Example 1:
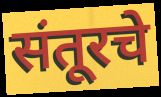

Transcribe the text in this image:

संतूरचे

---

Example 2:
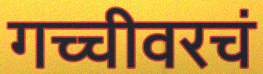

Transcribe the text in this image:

गच्चीवरचं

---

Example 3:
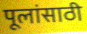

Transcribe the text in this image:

पूलांसाठी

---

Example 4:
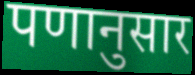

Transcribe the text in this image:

पणानुसार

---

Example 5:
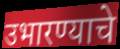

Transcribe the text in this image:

उभारण्याचे